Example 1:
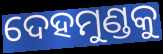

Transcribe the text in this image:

ଦେହମୁଣ୍ଡକୁ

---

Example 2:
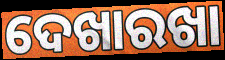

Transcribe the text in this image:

ଦେଖାରଖା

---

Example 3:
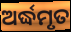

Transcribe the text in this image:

ଅର୍ଦ୍ଧମୃତ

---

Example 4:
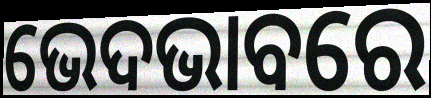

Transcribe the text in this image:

ଭେଦଭାବରେ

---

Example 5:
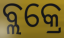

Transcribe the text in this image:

ବ୍ଲକ୍ରେ